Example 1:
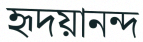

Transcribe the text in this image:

হৃদয়ানন্দ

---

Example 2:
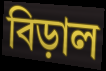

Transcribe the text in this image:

বিড়াল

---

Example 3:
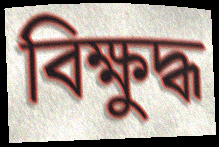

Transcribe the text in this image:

বিক্ষুদ্ধ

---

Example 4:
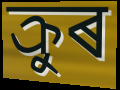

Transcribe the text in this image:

ক্ৰুৰ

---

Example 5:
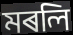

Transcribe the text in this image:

মৰলি